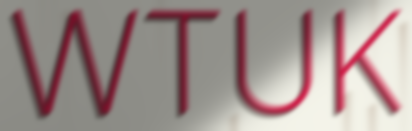
WTUK